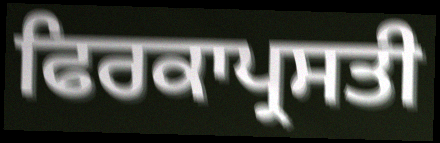
ਫਿਰਕਾਪ੍ਰਸਤੀ